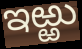
ఇఱ్ఱు